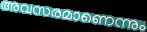
അവസരമാണെന്നും